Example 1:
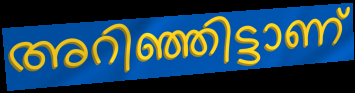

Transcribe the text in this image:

അറിഞ്ഞിട്ടാണ്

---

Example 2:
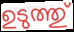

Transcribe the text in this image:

ഉടുത്തു്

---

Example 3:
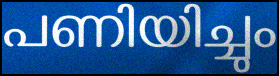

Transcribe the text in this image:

പണിയിച്ചും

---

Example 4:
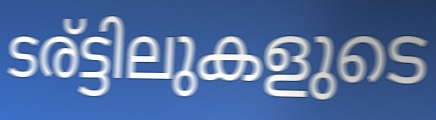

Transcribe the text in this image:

ടര്ട്ടിലുകളുടെ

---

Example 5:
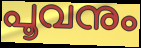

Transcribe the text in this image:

പൂവനും